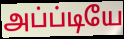
அப்ப்டியே